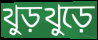
থুড়থুড়ে